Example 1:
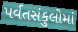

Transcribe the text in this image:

પર્વતસંકુલોમાં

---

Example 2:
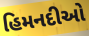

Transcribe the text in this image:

હિમનદીઓ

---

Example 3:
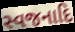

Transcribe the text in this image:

સ્વજનાદિ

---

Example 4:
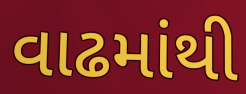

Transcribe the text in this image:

વાઢમાંથી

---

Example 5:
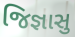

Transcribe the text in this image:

જિજ્ઞાસુ